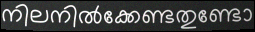
നിലനിൽക്കേണ്ടതുണ്ടോ